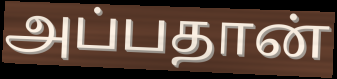
அப்பதான்